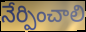
నేర్పించాలి